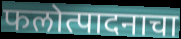
फलोत्पादनाचा